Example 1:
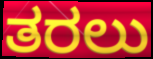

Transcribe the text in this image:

ತರಲು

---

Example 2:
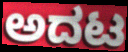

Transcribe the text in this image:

ಅದಟ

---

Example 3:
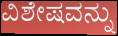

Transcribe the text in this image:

ವಿಶೇಷವನ್ನು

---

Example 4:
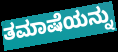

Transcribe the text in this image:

ತಮಾಷೆಯನ್ನು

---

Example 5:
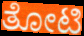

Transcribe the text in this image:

ತೋಟಿ